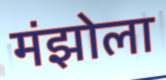
मंझोला